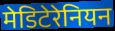
मेडिटेरेनियन